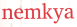
nemkya